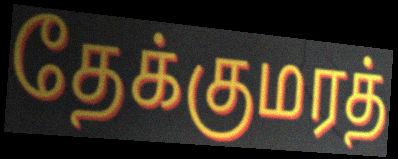
தேக்குமரத்